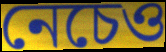
নেচেও